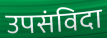
उपसंविदा